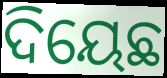
ଦିୟେଛ